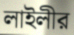
লাইলীর